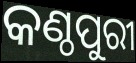
କଣ୍ଠପୁରୀ